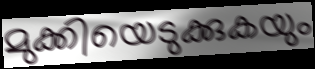
മുക്കിയെടുക്കുകയും